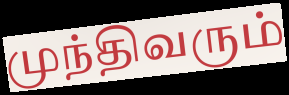
முந்திவரும்